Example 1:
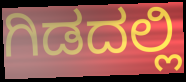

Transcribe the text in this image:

ಗಿಡದಲ್ಲಿ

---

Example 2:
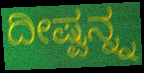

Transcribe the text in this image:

ದೀಷ್ವನ್ನ್ನ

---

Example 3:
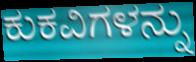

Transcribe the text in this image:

ಕುಕವಿಗಳನ್ನು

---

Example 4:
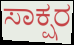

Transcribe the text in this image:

ಸಾಕ್ಷರ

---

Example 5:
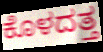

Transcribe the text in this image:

ಕೊಳದತ್ತ